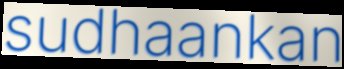
sudhaankan